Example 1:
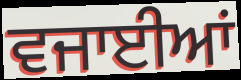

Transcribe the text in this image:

ਵਜਾਈਆਂ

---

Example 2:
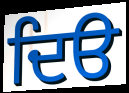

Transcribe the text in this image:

ਦਿੳ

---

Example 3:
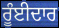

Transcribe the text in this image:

ਰੂੰਈਦਾਰ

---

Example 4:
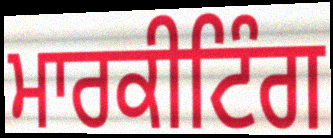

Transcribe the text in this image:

ਮਾਰਕੀਟਿੰਗ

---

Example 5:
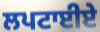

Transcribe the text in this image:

ਲਪਟਾਈਏ